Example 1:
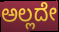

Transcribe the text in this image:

ಅಲ್ಲದೇ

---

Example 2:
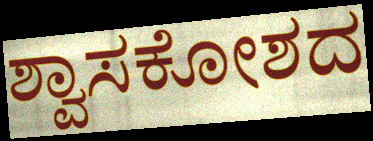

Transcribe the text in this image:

ಶ್ವಾಸಕೋಶದ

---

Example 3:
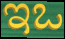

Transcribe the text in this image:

ಇಒ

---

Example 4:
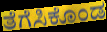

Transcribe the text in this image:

ತೆಗೆಸಿಕೊಂಡ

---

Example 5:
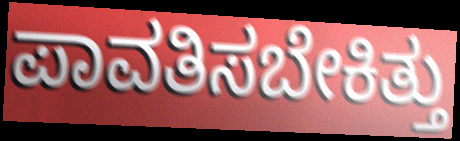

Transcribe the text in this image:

ಪಾವತಿಸಬೇಕಿತ್ತು